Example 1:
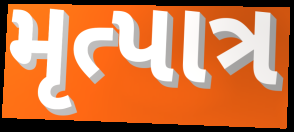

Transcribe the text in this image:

મૃત્પાત્ર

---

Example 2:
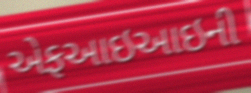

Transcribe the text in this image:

એફઆઇઆઇની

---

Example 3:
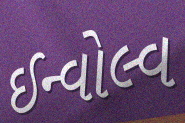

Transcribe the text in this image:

ઈન્વોલ્વ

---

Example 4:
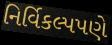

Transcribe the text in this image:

નિર્વિકલ્પપણે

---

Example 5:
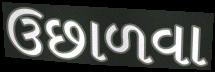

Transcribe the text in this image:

ઉછાળવા